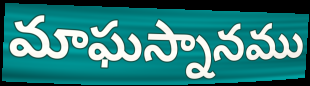
మాఘస్నానము